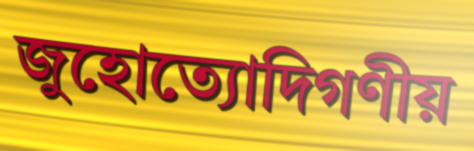
জুহোত্যোদিগণীয়